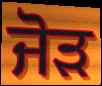
ਜੋੜ